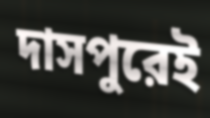
দাসপুরেই